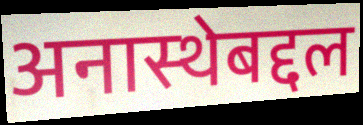
अनास्थेबद्दल